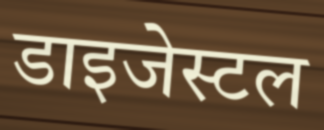
डाइजेस्टल